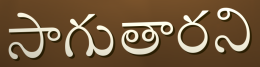
సాగుతారని